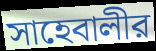
সাহেবালীর